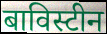
बाविस्टीन